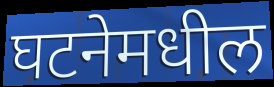
घटनेमधील